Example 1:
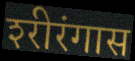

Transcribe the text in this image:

श्रीरंगास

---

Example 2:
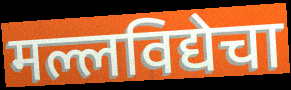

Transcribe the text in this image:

मल्लविद्येचा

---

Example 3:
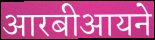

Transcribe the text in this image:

आरबीआयने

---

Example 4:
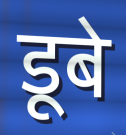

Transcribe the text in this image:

डूबे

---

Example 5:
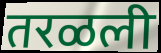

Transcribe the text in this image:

तरळली